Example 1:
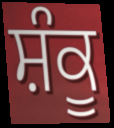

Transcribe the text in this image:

ਸ਼ੰਕੂ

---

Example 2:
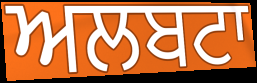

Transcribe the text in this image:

ਅਲਬਟਾ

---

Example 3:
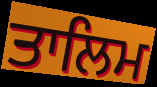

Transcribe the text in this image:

ਤਾਲਿਮ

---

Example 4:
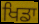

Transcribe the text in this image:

ਖਿਡਾ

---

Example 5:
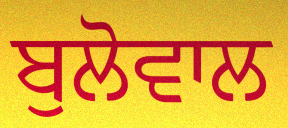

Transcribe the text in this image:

ਬੁਲੋਵਾਲ